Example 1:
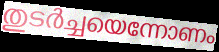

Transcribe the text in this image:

തുടർച്ചയെന്നോണം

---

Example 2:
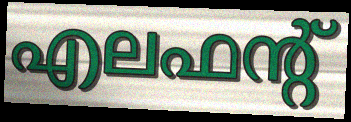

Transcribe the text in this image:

എലഫന്റ്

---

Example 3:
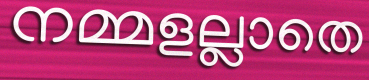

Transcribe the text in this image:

നമ്മളല്ലാതെ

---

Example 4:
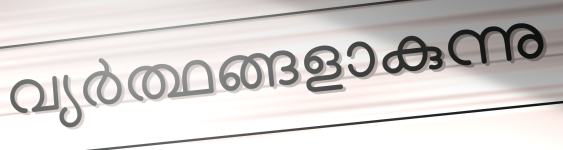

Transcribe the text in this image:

വ്യർത്ഥങ്ങളാകുന്നു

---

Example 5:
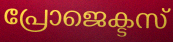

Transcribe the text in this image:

പ്രോജെക്ടസ്